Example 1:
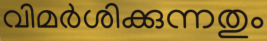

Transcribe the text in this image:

വിമർശിക്കുന്നതും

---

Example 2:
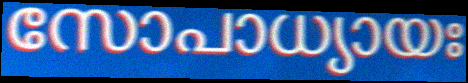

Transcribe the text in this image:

സോപാധ്യായഃ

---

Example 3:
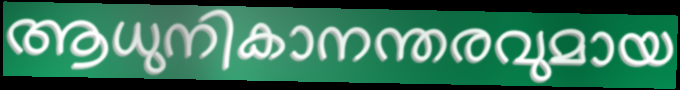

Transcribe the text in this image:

ആധുനികാനന്തരവുമായ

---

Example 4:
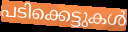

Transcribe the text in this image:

പടിക്കെട്ടുകൾ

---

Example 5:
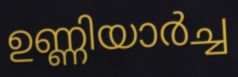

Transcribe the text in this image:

ഉണ്ണിയാർച്ച